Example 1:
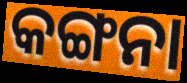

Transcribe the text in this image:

କଙ୍ଗନା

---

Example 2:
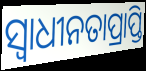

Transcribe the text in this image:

ସ୍ଵାଧୀନତାପ୍ରାପ୍ତି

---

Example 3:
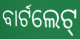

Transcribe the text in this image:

ବାର୍ଟଲେଟ୍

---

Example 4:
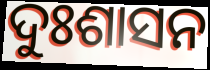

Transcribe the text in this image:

ଦୁଃଶାସନ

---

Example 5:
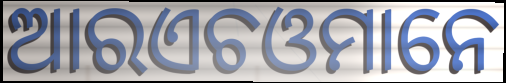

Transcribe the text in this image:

ଆରଏଚଓମାନେ